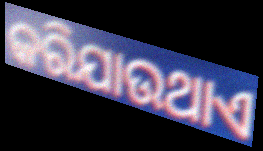
କରିଯାଉଥାଏ